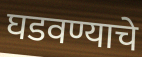
घडवण्याचे